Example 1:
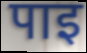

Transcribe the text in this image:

पाइ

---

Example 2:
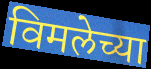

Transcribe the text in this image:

विमलेच्या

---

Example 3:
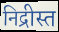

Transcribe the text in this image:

निद्रीस्त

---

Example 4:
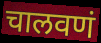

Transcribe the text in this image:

चालवणं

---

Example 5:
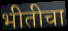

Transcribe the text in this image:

भीतीचा